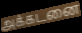
அக்கடனை